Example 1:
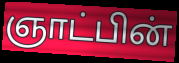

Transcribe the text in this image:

ஞாட்பின்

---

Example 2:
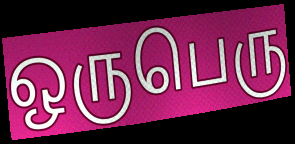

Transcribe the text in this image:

ஒருபெரு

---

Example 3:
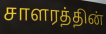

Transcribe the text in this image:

சாளரத்தின்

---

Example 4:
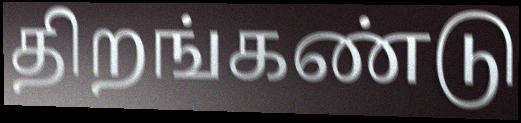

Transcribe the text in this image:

திறங்கண்டு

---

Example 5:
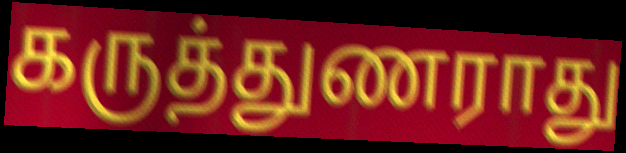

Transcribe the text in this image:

கருத்துணராது